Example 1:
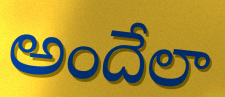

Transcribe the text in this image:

అందేలా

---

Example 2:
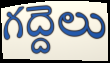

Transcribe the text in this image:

గద్దెలు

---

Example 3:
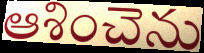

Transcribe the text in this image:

ఆశించెను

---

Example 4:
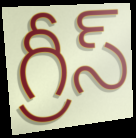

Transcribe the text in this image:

గ్రీస్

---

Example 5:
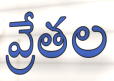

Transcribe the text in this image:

వ్రేతల